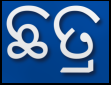
ଛତ୍ର